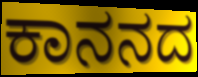
ಕಾನನದ